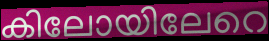
കിലോയിലേറെ